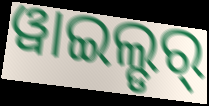
ୱାଇଲ୍ଡର୍